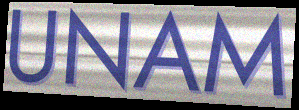
UNAM